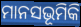
ମାନସଭୂମିକି